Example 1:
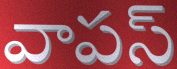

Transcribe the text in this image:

వాపస్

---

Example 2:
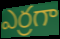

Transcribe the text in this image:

ఎర్రగా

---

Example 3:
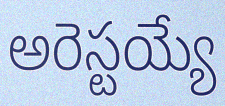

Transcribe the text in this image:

అరెస్టయ్యే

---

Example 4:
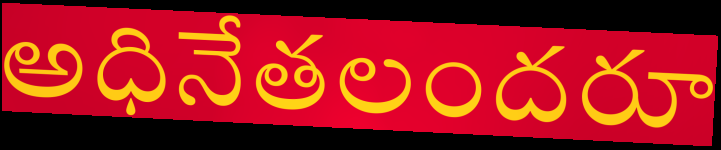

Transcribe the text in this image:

అధినేతలందరూ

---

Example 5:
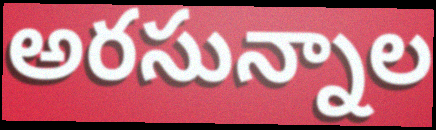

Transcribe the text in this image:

అరసున్నాల